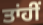
ਤਾਂਹੀਂ